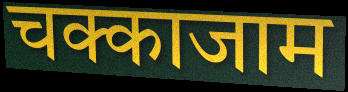
चक्काजाम